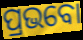
ପ୍ରଭବୋ